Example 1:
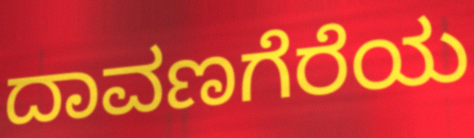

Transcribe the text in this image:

ದಾವಣಗೆರೆಯ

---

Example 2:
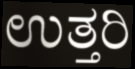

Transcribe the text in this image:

ಉತ್ತರಿ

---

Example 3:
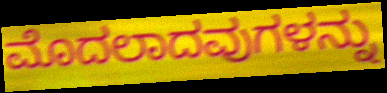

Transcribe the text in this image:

ಮೊದಲಾದವುಗಳನ್ನು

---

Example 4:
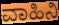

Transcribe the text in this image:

ವಾಹಿನಿ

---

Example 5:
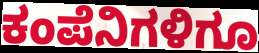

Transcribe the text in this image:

ಕಂಪೆನಿಗಳಿಗೂ